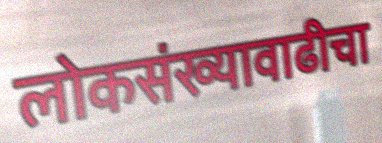
लोकसंख्यावाढीचा